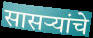
सासर्‍यांचे